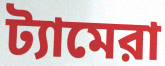
ট্যামেরা